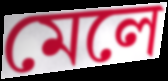
মেলে